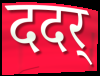
ददर्